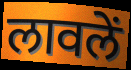
लावलें